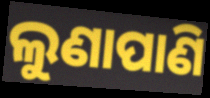
ଲୁଣାପାଣି